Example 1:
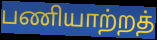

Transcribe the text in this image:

பணியாற்றத்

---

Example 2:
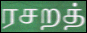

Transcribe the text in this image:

ரசறத்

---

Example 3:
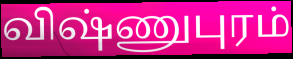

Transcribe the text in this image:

விஷ்ணுபுரம்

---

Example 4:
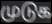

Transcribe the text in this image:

முடுக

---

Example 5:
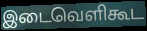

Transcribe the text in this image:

இடைவெளிகூட